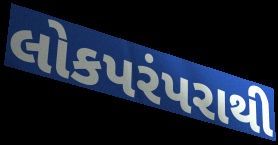
લોકપરંપરાથી